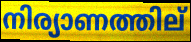
നിര്യാണത്തില്